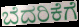
ಬೆದರಿಕೆಗೆ